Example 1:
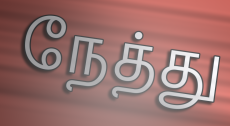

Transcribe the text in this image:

நேத்து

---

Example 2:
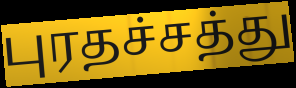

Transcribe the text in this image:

புரதச்சத்து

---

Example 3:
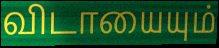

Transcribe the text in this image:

விடாயையும்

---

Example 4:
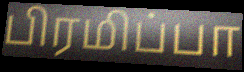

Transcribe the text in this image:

பிரமிப்பா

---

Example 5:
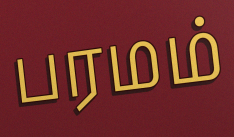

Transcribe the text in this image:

பரமம்